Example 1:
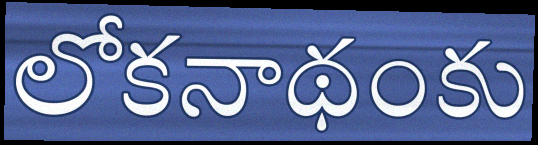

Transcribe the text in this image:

లోకనాథంకు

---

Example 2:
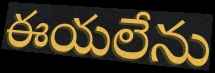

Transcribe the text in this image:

ఈయలేను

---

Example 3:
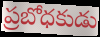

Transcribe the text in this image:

ప్రబోధకుడు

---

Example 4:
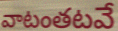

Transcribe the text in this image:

వాటంతటవే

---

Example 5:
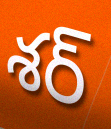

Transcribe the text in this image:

శర్